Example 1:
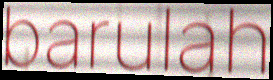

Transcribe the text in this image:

barulah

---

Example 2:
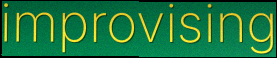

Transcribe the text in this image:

improvising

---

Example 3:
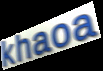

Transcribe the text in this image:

khaoa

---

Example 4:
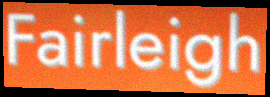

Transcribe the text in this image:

Fairleigh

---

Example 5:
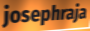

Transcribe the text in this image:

josephraja